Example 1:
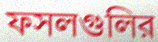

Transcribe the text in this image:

ফসলগুলির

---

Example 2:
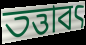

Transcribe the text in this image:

তত্তাবৎ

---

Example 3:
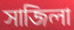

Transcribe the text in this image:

সাজিলা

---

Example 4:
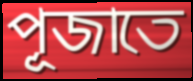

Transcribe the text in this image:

পূজাতে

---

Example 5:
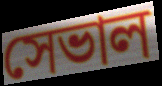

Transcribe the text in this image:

সেভাল